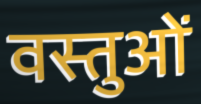
वस्तुओं